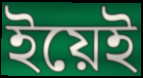
ইয়েই